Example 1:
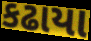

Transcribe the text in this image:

કઢાયા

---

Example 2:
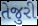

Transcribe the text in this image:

તેજુરી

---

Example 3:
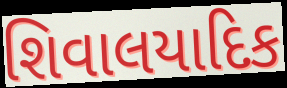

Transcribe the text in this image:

શિવાલયાદિક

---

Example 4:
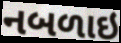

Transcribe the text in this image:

નબળાઇ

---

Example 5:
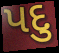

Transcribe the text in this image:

પદુ